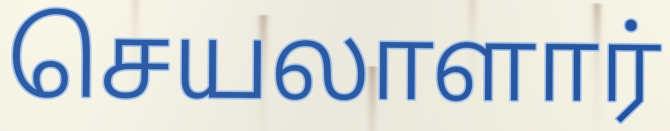
செயலாளார்